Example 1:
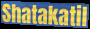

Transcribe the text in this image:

Shatakatil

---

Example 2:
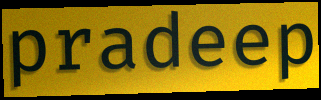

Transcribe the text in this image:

pradeep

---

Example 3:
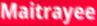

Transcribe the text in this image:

Maitrayee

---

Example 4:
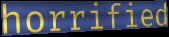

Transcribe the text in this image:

horrified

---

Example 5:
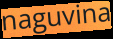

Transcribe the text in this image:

naguvina